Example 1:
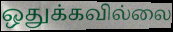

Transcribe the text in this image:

ஒதுக்கவில்லை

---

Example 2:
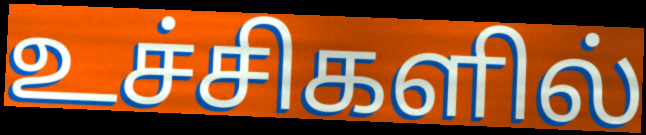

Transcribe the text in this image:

உச்சிகளில்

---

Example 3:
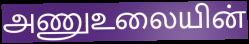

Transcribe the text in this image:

அணுஉலையின்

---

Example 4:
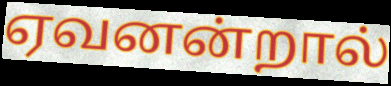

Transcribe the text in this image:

ஏவனன்றால்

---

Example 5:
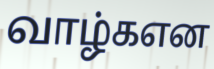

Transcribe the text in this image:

வாழ்கஎன